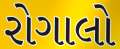
રોગાલો